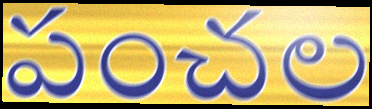
పంచల